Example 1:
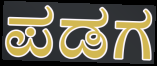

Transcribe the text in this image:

ಪಡಗ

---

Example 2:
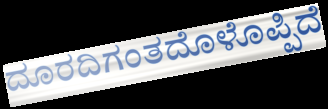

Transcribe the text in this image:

ದೂರದಿಗಂತದೊಳೊಪ್ಪಿದೆ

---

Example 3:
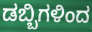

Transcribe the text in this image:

ಡಬ್ಬಿಗಳಿಂದ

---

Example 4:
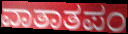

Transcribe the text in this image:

ವಾತಾತಪಂ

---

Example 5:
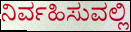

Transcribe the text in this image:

ನಿರ್ವಹಿಸುವಲ್ಲಿ